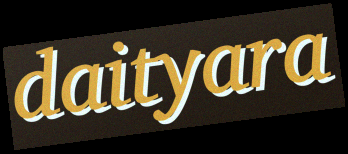
daityara